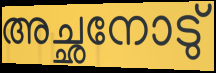
അച്ഛനോടു്